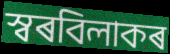
স্বৰবিলাকৰ